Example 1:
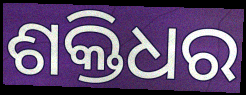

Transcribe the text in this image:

ଶକ୍ତିଧର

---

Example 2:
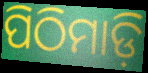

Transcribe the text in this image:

ପିଠିମାଡ଼ି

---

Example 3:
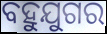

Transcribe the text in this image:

ବହୁଯୁଗର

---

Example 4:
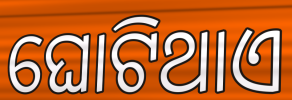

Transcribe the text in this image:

ଘୋଟିଥାଏ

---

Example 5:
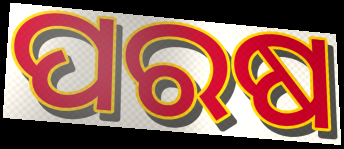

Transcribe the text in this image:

ପରଷ